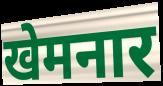
खेमनार